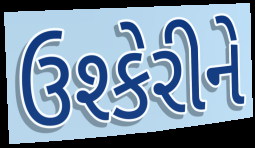
ઉશ્કેરીને